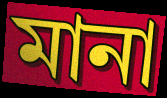
মানা